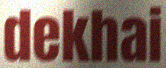
dekhai